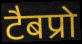
टैबप्रो